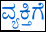
ವ್ಯಕ್ತಿಗೆ